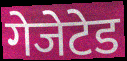
गेजेटेड